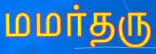
மமர்தரு